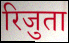
रिजुता